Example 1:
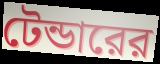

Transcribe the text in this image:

টেন্ডারের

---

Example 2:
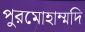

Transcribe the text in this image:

পুরমোহাম্মদি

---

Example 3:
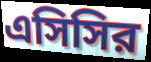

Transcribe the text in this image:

এসিসির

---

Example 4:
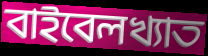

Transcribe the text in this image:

বাইবেলখ্যাত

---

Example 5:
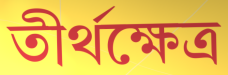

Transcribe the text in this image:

তীর্থক্ষেত্র